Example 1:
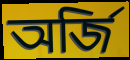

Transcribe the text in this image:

অর্জি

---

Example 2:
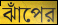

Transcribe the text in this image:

ঝাঁপের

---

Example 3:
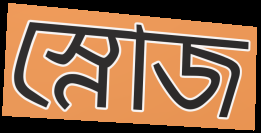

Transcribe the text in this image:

স্নোজ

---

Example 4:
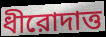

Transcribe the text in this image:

ধীরোদাত্ত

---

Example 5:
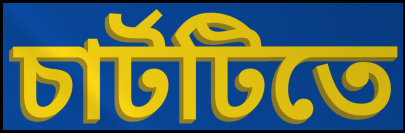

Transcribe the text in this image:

চার্টটিতে